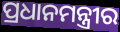
ପ୍ରଧାନମନ୍ତ୍ରୀର